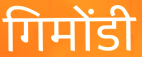
गिमोंडी